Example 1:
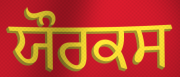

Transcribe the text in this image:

ਯੌਰਕਸ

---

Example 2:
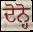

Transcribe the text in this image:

ਦੋਨ੍ਹੋ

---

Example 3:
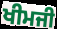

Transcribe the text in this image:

ਖੀਮਜੀ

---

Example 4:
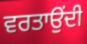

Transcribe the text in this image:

ਵਰਤਾਉਂਦੀ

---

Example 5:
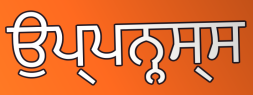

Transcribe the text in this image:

ਉਪ੍ਪਨ੍ਨਸ੍ਸ